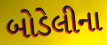
બોડેલીના